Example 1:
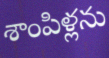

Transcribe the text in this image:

శాంపిళ్లను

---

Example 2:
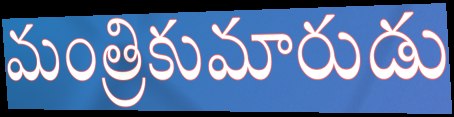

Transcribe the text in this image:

మంత్రికుమారుడు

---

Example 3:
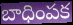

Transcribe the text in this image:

బాధింపక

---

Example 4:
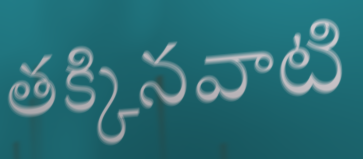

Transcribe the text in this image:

తక్కినవాటి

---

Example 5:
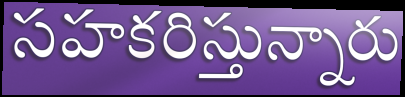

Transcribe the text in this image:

సహకరిస్తున్నారు